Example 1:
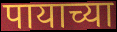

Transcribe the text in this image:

पायाच्या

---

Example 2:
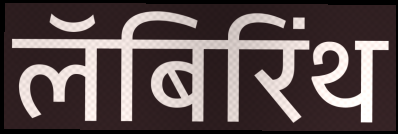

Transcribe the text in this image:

लॅबिरिंथ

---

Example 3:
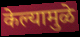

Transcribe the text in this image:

केल्यामुळे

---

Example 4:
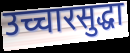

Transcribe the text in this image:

उच्चारसुद्धा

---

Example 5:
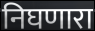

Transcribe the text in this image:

निघणारा